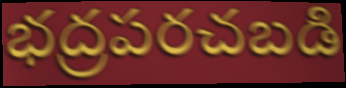
భద్రపరచబడి